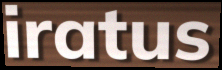
iratus